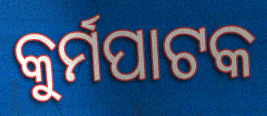
କୁର୍ମପାଟକ